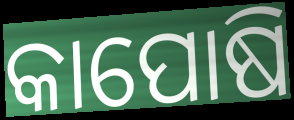
କାପୋଷି